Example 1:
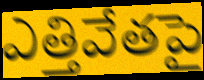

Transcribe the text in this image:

ఎత్తివేతపై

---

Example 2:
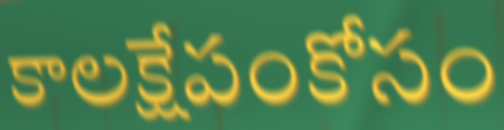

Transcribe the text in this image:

కాలక్షేపంకోసం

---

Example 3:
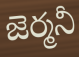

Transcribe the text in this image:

జెర్మనీ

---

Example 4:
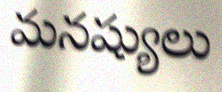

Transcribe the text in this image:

మనష్యులు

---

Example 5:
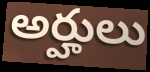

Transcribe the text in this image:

అర్హులు